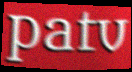
patu